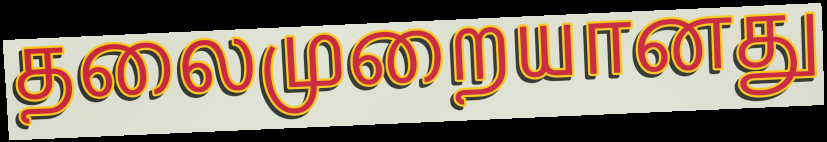
தலைமுறையானது